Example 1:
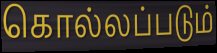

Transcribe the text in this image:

கொல்லப்படும்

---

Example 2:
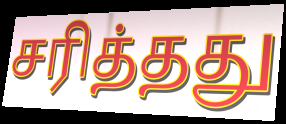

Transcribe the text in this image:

சரித்தது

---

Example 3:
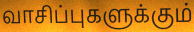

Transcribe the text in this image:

வாசிப்புகளுக்கும்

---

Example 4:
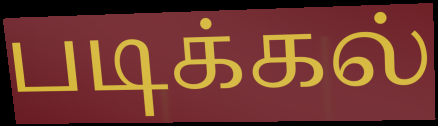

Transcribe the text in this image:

படிக்கல்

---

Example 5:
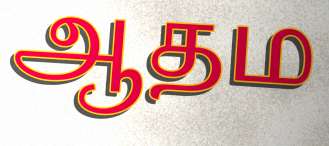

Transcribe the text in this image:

ஆதம